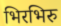
भिरभिरु